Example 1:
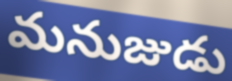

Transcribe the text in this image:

మనుజుడు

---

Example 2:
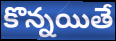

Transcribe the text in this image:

కొన్నయితే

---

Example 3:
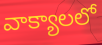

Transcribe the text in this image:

వాక్యాలలో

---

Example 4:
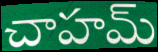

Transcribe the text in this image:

చాహమ్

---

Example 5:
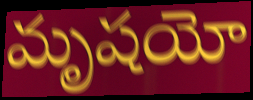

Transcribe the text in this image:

మృషయో